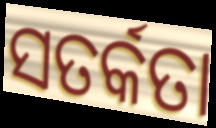
ସତର୍କତା